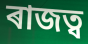
ৰাজত্ব